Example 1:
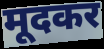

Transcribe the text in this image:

मूदकर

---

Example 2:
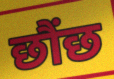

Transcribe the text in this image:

छौंछ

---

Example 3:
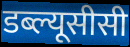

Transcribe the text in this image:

डब्ल्यूसीसी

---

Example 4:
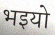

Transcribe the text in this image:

भइयो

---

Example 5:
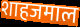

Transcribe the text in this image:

शाहजमाल